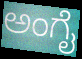
ಅಂಗೈ